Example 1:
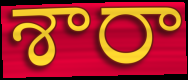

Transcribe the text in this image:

శారా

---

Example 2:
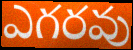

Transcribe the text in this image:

ఎగరవు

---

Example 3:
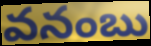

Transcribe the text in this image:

వనంబు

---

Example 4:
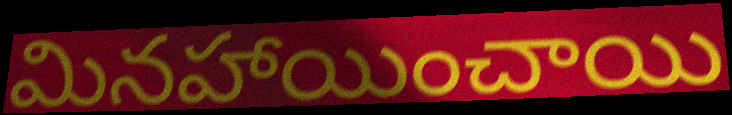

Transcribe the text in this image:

మినహాయించాయి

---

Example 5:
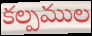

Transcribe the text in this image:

కల్పముల